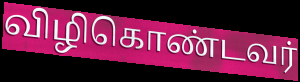
விழிகொண்டவர்